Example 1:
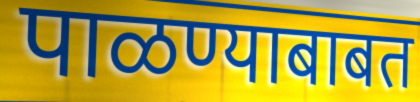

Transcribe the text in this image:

पाळण्याबाबत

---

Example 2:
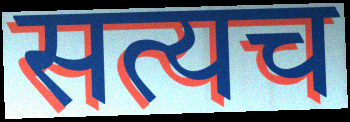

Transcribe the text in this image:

सत्यच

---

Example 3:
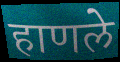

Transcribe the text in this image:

हाणले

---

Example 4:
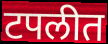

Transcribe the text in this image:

टपलीत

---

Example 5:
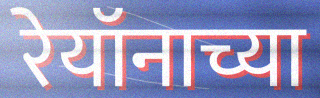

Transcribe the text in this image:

रेयॉनाच्या